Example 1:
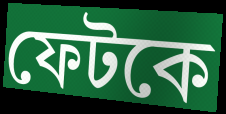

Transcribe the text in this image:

ফেটকে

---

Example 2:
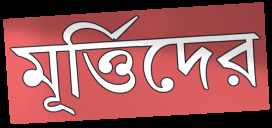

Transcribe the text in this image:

মূর্ত্তিদের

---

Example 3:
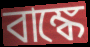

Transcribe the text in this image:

বাঙ্কে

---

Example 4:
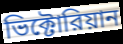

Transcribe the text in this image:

ভিক্টোরিয়ান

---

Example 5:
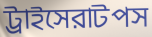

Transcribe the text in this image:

ট্রাইসেরাটপস